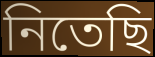
নিতেছি